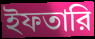
ইফতারি